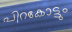
പിറകോട്ടും